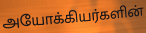
அயோக்கியர்களின்